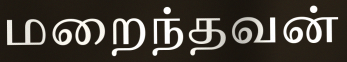
மறைந்தவன்